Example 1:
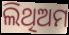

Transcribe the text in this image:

ଲିଥିଅମ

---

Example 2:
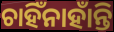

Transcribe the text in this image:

ଚାହିଁନାହାଁନ୍ତି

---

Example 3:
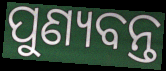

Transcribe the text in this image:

ପୁଣ୍ୟବନ୍ତ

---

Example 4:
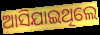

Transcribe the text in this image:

ଆସିଯାଇଥିଲେ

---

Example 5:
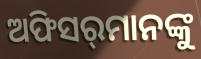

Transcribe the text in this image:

ଅଫିସର୍‌ମାନଙ୍କୁ